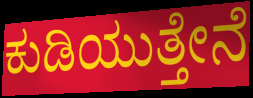
ಕುಡಿಯುತ್ತೇನೆ